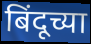
बिंदूच्या